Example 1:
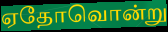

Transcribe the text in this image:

ஏதோவொன்று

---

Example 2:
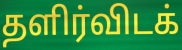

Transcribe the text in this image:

தளிர்விடக்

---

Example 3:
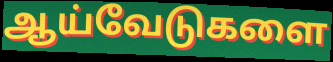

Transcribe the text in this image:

ஆய்வேடுகளை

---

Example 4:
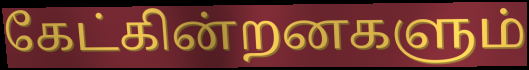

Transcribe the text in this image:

கேட்கின்றனகளும்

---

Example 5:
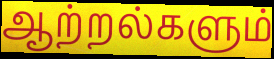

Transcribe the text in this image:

ஆற்றல்களும்